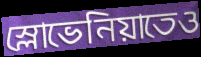
স্লোভেনিয়াতেও